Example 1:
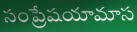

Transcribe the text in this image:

సంప్రేషయామాస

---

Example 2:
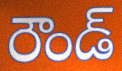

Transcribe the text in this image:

రౌండ్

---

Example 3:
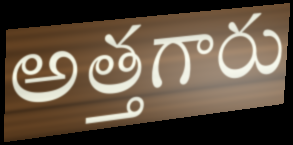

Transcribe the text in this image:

అత్తగారు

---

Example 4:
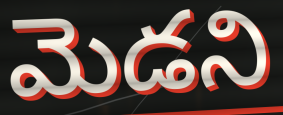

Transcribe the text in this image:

మెడని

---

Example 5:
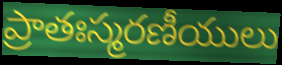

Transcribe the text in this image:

ప్రాతఃస్మరణీయులు